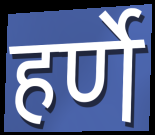
हर्णे